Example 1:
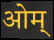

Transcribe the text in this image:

ओम्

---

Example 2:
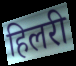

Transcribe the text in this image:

हिलरी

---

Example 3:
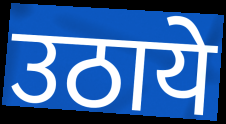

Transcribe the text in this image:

उठाये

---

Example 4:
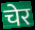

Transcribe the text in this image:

चेर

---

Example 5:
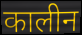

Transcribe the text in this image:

कालीन